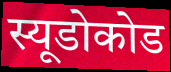
स्यूडोकोड